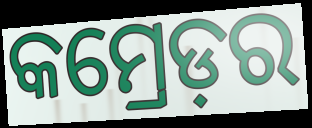
କମ୍ରେଡ଼ର